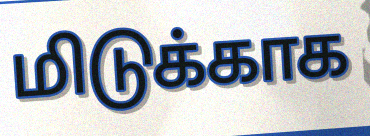
மிடுக்காக